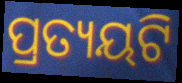
ପ୍ରତ୍ୟୟଟି